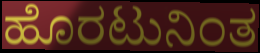
ಹೊರಟುನಿಂತ